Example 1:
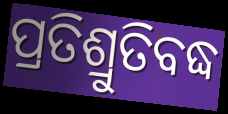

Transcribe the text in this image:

ପ୍ରତିଶ୍ରୁତିବଦ୍ଧ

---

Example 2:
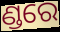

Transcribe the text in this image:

ଣ୍ଡରେ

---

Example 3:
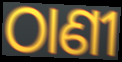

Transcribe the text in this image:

ଠାଣୀ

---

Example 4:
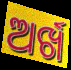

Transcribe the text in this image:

ଅର୍ଖ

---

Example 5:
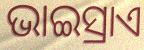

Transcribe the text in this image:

ଭାଇସ୍ରାଏ